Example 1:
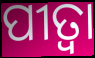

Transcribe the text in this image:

ପୀତ୍ବା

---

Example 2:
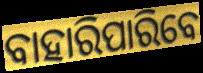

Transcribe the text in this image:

ବାହାରିପାରିବେ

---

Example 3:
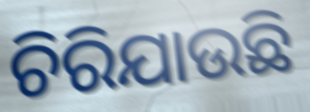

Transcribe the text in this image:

ଚିରିଯାଉଛି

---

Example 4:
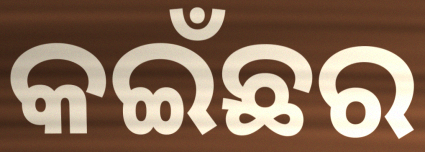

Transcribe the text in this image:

କଇଁଛର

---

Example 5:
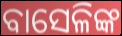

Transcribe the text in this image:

ବାସେଳିଙ୍କ